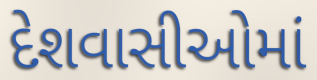
દેશવાસીઓમાં